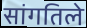
सांगतिले